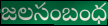
జలసంబంధ